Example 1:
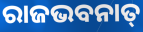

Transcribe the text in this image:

ରାଜଭବନାତ୍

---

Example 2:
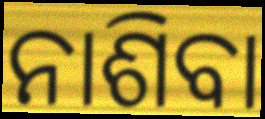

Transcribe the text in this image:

ନାଶିବା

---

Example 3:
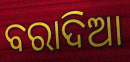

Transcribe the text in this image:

ବରାଦିଆ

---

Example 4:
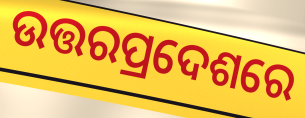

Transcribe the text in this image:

ଉତ୍ତରପ୍ରଦେଶରେ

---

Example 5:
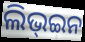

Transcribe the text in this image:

ଲିଭ୍ଇନ